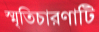
স্মৃতিচারণাটি